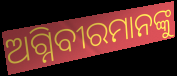
ଅଗ୍ନିବୀରମାନଙ୍କୁ